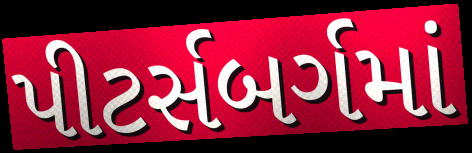
પીટર્સબર્ગમાં